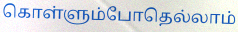
கொள்ளும்போதெல்லாம்